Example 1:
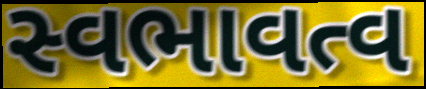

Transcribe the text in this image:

સ્વભાવત્વ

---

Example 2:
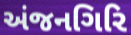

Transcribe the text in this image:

અંજનગિરિ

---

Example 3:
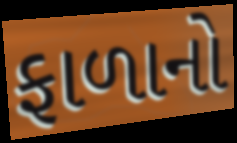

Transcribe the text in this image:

ફાળાનો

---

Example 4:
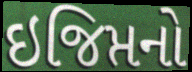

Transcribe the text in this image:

ઇજિપ્તનો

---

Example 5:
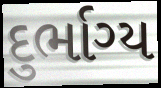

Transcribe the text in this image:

દુર્ભાગ્ય